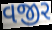
વજીર